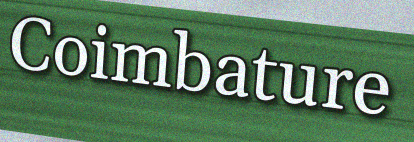
Coimbature